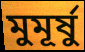
মুমূৰ্ষু